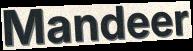
Mandeer